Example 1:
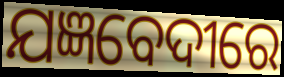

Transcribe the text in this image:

ଯଜ୍ଞବେଦୀରେ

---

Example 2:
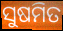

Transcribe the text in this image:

ସୁଷମିତ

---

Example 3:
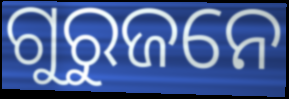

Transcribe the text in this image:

ଗୁରୁଜନେ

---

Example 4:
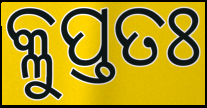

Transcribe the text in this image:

କ୍ଳୁପ୍ତତଃ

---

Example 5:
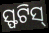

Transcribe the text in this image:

ସ୍ଫଟିସ୍